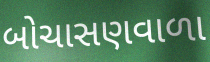
બોચાસણવાળા